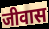
जीवास